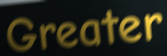
Greater